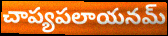
చాప్యపలాయనమ్